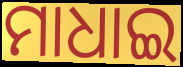
ମାଧାଇ